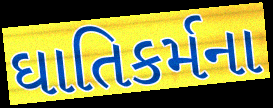
ઘાતિકર્મના